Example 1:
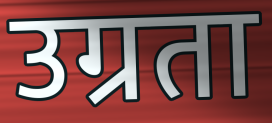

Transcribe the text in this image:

उग्रता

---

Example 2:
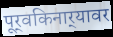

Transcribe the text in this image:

पूर्वकिनार्यावर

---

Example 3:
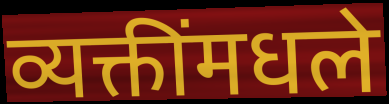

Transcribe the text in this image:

व्यक्तींमधले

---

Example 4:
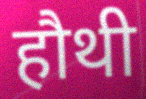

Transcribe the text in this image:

हौथी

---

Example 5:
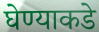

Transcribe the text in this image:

घेण्याकडे